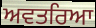
ਅਵਤਰਿਆ